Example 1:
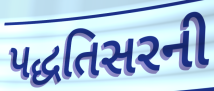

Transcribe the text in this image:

પદ્ધતિસરની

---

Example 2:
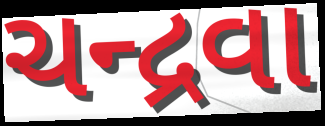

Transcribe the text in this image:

ચન્દ્રવા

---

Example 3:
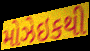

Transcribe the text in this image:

મોઝેઇકથી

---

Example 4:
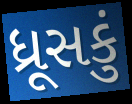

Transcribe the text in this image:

ધ્રૂસકું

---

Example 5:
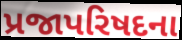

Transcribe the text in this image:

પ્રજાપરિષદના